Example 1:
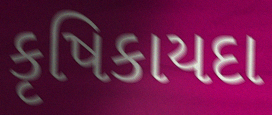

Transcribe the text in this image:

કૃષિકાયદા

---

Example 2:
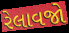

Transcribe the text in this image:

રેલાવજો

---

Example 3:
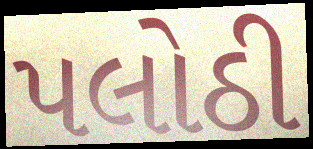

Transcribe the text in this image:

પલોઠી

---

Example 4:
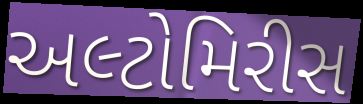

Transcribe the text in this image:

અલ્ટોમિરીસ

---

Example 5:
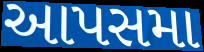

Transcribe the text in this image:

આપસમા